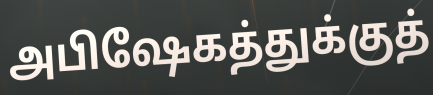
அபிஷேகத்துக்குத்